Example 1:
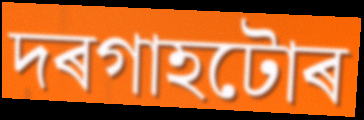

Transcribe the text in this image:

দৰগাহটোৰ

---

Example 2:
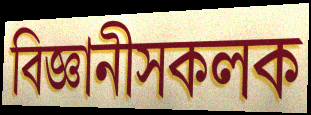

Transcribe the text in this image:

বিজ্ঞানীসকলক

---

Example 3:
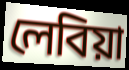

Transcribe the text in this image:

লেবিয়া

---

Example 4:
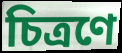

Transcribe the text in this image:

চিত্ৰণে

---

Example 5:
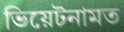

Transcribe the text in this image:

ভিয়েটনামত